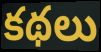
కథలు